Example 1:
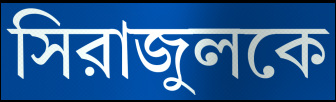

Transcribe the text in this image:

সিরাজুলকে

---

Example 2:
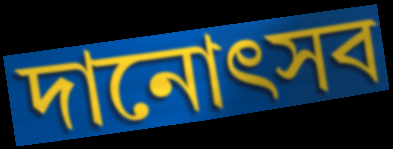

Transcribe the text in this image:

দানোৎসব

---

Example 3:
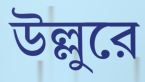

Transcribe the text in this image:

উল্লুরে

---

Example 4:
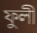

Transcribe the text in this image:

ফুলী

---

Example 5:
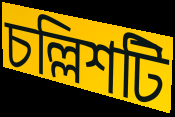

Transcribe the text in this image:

চল্লিশটি